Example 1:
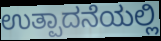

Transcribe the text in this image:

ಉತ್ಪಾದನೆಯಲ್ಲಿ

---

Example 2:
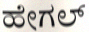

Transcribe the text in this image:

ಹೇಗಲ್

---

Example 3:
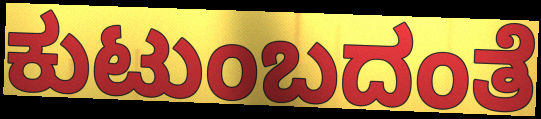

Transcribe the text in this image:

ಕುಟುಂಬದಂತೆ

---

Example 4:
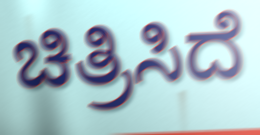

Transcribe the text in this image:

ಚಿತ್ರಿಸಿದೆ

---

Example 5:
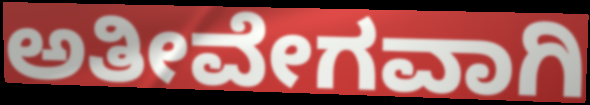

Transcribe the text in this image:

ಅತೀವೇಗವಾಗಿ